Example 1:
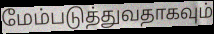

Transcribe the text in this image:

மேம்படுத்துவதாகவும்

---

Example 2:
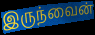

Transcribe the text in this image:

இருந்வைன்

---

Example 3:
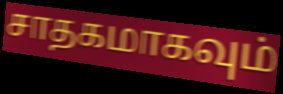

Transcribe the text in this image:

சாதகமாகவும்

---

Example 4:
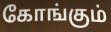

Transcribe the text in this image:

கோங்கும்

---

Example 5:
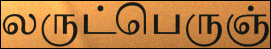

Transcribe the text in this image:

லருட்பெருஞ்